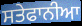
ਸਤੇਫਾਨੀਆ